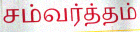
சம்வர்த்தம்